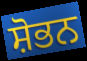
ਸ਼ੋਭਨ